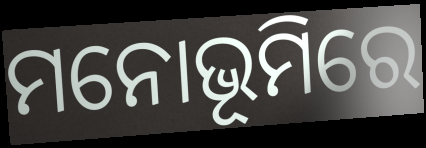
ମନୋଭୂମିରେ